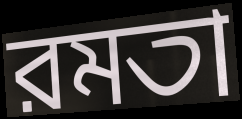
রমতা